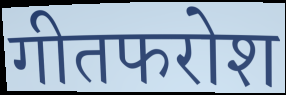
गीतफरोश